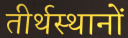
तीर्थस्थानों